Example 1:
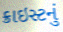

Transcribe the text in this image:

ક્રાઇસ્ટનું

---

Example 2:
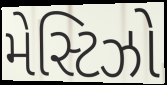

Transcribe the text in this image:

મેસ્ટિઝો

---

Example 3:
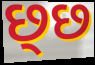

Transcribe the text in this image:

છ્છ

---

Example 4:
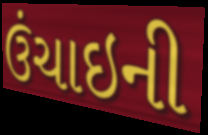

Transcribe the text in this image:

ઉંચાઇની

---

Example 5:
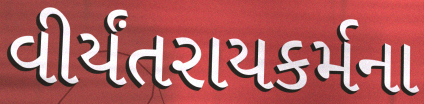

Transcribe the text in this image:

વીર્યંતરાયકર્મના